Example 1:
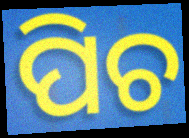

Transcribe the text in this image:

ପିଚ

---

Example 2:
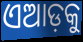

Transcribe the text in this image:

ଏଆଡ଼କୁ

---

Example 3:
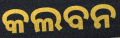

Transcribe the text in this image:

କଲବନ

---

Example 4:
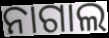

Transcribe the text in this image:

ନାଗାଲ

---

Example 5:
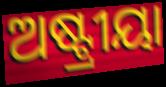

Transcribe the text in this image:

ଅଷ୍ଟ୍ରୀୟା